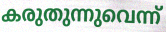
കരുതുന്നുവെന്ന്